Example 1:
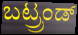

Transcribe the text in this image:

ಬಟ್ರ್ರಂಡ್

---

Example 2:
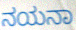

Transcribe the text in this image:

ನಯನಾ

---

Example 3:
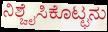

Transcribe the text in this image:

ನಿಶ್ಚೈಸಿಕೊಟ್ಟನು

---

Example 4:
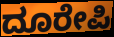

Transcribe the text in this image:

ದೂರೇಪಿ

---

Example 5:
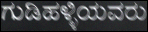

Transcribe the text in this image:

ಗುಡಿಹಳ್ಳಿಯವರು